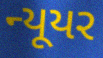
ન્યૂયર